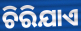
ଚିରିଯାଏ